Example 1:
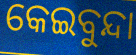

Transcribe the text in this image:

କେଇବୁନ୍ଦା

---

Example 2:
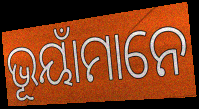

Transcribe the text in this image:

ଭୂୟାଁମାନେ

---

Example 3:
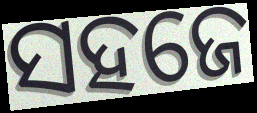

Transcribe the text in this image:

ସହଜେ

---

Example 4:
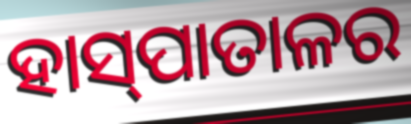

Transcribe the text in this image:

ହାସ୍‍ପାତାଳର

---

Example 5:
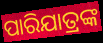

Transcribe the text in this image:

ପାରିଯାତ୍ରଙ୍କ